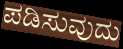
ಪಡಿಸುವುದು